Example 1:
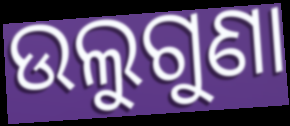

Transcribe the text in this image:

ଉଲୁଗୁଣା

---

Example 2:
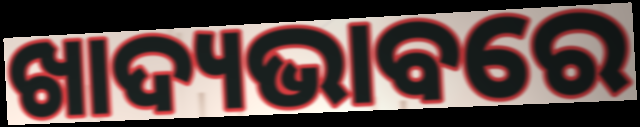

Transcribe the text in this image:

ଖାଦ୍ୟଭାବରେ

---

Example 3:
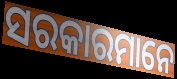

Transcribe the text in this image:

ସରକାରମାନେ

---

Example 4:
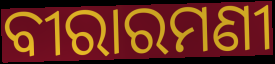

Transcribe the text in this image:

ବୀରାରମଣୀ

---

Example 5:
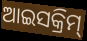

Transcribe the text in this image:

ଆଇସକ୍ରିମ୍